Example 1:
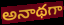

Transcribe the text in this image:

అనాథగా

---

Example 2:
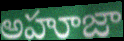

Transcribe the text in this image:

అహూజా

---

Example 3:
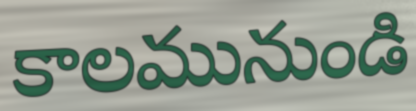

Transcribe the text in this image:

కాలమునుండి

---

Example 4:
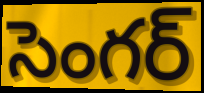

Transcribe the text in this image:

సెంగర్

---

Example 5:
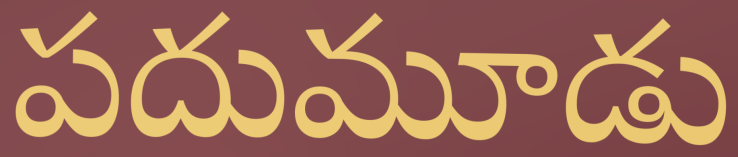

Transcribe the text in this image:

పదుమూడు